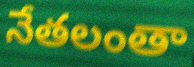
నేతలంతా